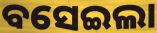
ବସେଇଲା